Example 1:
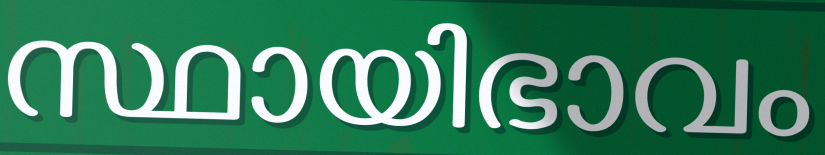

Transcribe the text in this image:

സ്ഥായിഭാവം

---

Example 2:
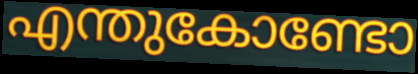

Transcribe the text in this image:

എന്തുകോണ്ടോ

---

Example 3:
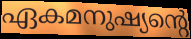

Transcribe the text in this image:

ഏകമനുഷ്യന്റെ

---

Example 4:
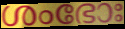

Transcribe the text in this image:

ശംഭോഃ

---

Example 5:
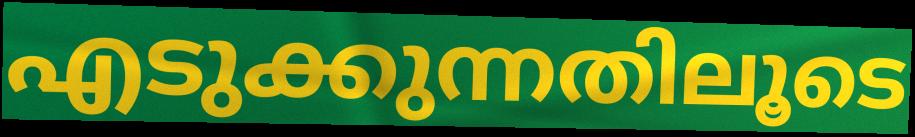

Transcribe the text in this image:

എടുക്കുന്നതിലൂടെ